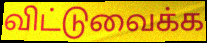
விட்டுவைக்க